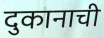
दुकानाची